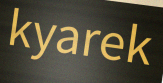
kyarek